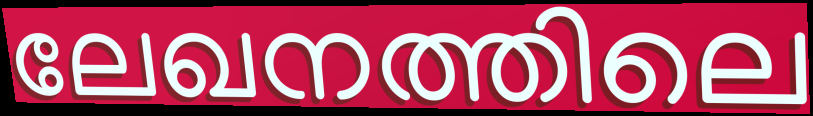
ലേഖനത്തിലെ